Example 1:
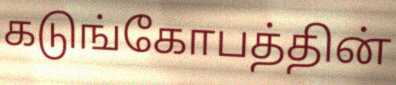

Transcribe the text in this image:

கடுங்கோபத்தின்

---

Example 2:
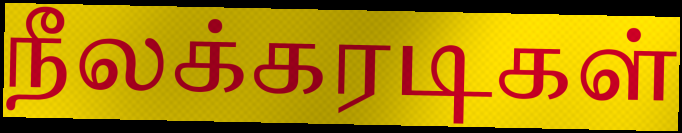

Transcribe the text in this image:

நீலக்கரடிகள்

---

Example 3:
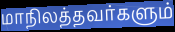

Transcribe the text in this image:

மாநிலத்தவர்களும்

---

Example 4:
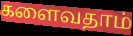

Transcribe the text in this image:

களைவதாம்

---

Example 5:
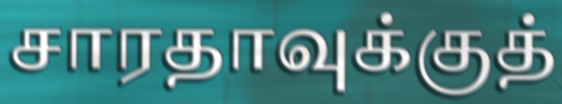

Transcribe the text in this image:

சாரதாவுக்குத்